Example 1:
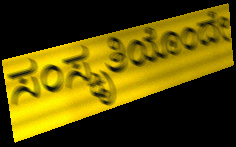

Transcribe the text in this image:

ಸಂಸ್ಕೃತಿಯೊಂದೇ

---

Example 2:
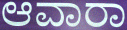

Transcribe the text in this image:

ಆವಾರಾ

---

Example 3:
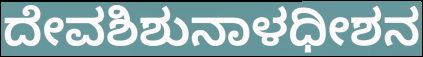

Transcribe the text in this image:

ದೇವಶಿಶುನಾಳಧೀಶನ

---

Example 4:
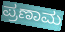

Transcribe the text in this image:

ಪ್ರಣಾಮ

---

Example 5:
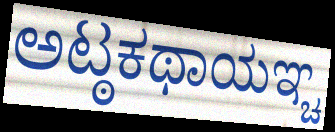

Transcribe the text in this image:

ಅಟ್ಠಕಥಾಯಞ್ಚ